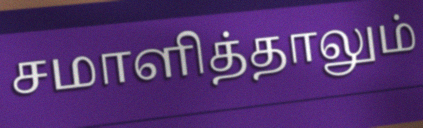
சமாளித்தாலும்